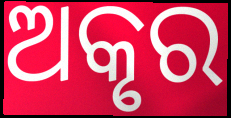
ଅକୃର